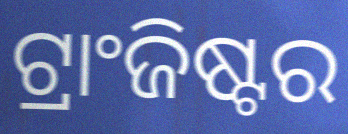
ଟ୍ରାଂଜିଷ୍ଟର